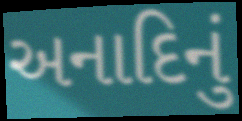
અનાદિનું